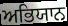
ਅਭਿਯਾਨ